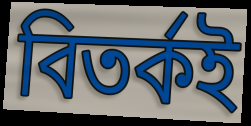
বিতৰ্কই